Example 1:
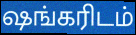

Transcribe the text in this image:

ஷங்கரிடம்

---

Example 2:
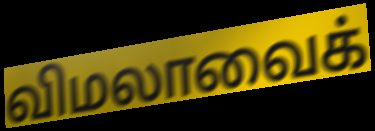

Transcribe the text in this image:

விமலாவைக்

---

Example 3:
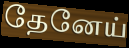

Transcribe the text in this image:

தேனேய்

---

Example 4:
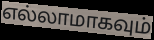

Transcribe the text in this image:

எல்லாமாகவும்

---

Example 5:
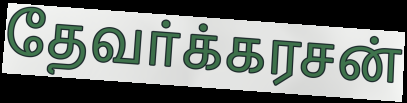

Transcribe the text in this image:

தேவர்க்கரசன்